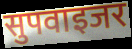
सुपवाइजर